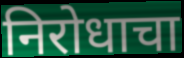
निरोधाचा